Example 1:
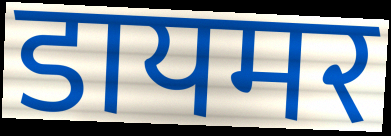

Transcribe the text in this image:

डायमर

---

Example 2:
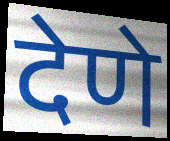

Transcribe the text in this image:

देणे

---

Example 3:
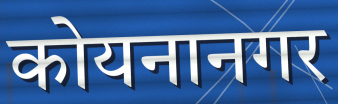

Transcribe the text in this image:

कोयनानगर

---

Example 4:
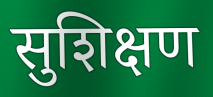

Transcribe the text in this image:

सुशिक्षण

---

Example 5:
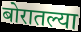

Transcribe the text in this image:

बोरातल्या